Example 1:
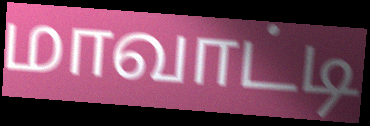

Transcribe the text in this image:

மாவாட்டி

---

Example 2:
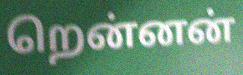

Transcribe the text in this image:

றென்னன்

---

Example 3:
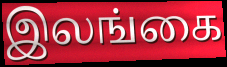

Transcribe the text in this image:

இலங்கை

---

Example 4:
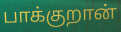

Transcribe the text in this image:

பாக்குறான்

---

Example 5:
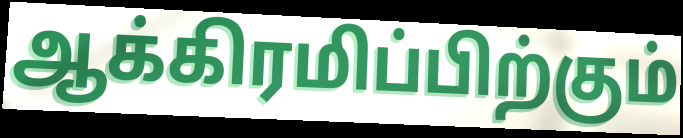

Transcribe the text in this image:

ஆக்கிரமிப்பிற்கும்